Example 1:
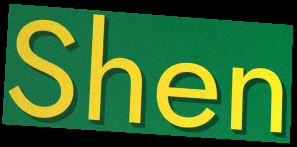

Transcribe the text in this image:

Shen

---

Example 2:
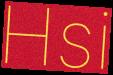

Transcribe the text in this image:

Hsi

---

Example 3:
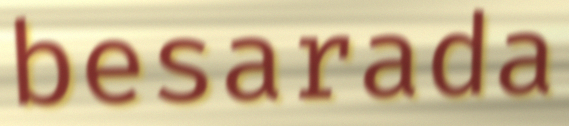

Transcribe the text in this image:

besarada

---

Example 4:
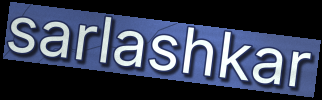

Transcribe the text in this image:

sarlashkar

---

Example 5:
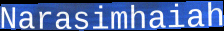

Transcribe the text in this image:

Narasimhaiah